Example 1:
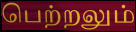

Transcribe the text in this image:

பெற்றலும்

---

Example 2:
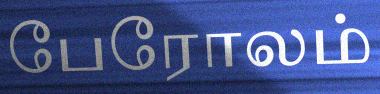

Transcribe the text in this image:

பேரோலம்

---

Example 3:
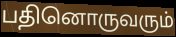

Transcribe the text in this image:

பதினொருவரும்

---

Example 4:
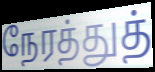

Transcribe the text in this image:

நேரத்துத்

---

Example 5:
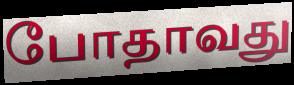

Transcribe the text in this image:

போதாவது